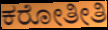
ಕರೋತೀತಿ